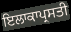
ਇਲਾਕਾਪ੍ਰਸਤੀ